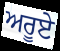
ਅਰੂਏ